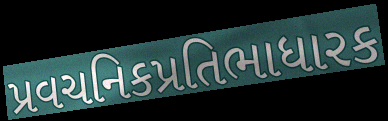
પ્રવચનિકપ્રતિભાધારક